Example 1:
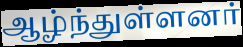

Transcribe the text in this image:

ஆழ்ந்துள்ளனர்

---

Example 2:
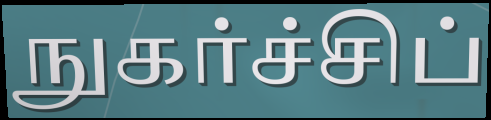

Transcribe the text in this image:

நுகர்ச்சிப்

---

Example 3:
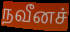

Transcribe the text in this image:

நவீனச்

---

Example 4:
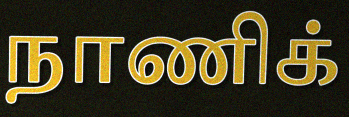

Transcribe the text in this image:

நாணிக்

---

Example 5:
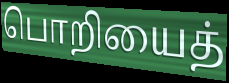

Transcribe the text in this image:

பொறியைத்